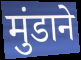
मुंडाने